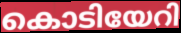
കൊടിയേറി